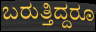
ಬರುತ್ತಿದ್ದರೂ